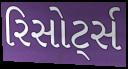
રિસોર્ટ્સ